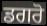
ਡਗਰੋ